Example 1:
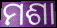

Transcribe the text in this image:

ମଶା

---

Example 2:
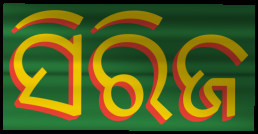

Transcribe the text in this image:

ସିରିଜ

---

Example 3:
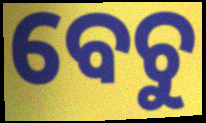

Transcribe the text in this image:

ବେଚୁ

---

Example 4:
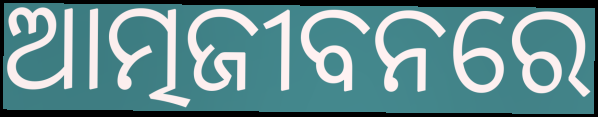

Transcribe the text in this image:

ଆତ୍ମଜୀବନରେ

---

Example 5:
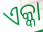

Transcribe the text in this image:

ଏକ୍କା